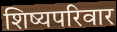
शिष्यपरिवार